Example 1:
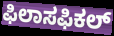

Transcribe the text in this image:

ಫಿಲಾಸಫಿಕಲ್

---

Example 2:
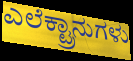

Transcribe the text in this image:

ಎಲೆಕ್ಟ್ರಾನುಗಳು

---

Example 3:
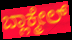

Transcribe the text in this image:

ಬ್ಲಾಕ್ಮೇಲ್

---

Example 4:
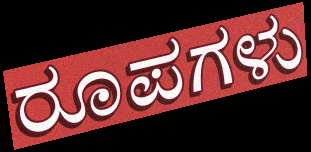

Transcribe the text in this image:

ರೂಪಗಳು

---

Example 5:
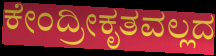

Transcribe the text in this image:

ಕೇಂದ್ರೀಕೃತವಲ್ಲದ